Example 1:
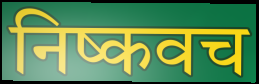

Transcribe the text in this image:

निष्कवच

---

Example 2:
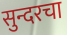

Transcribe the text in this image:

सुन्दरचा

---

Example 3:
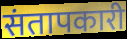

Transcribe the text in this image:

संतापकारी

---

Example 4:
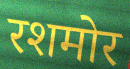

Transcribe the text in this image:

रशमोर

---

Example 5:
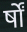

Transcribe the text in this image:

र्षों